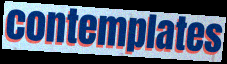
contemplates